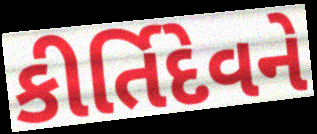
કીર્તિદેવને